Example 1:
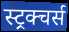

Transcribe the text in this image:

स्ट्रक्चर्स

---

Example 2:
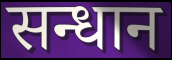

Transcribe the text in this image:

सन्धान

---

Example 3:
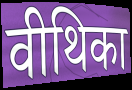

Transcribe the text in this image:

वीथिका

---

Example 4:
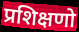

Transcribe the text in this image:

प्रशिक्षणो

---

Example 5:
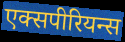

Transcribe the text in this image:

एक्सपीरियन्स